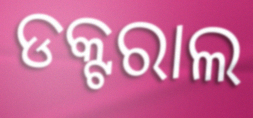
ଡକ୍ଟରାଲ